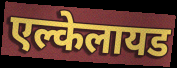
एल्केलायड